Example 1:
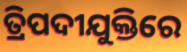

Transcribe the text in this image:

ତ୍ରିପଦୀଯୁକ୍ତିରେ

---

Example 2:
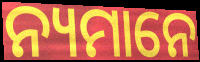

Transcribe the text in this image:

ନ୍ୟମାନେ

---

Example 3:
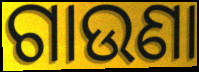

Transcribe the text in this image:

ଗାଉଣା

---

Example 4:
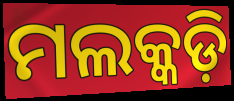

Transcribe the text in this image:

ମଲକ୍କଡ଼ି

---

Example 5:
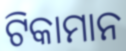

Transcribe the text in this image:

ଟିକାମାନ